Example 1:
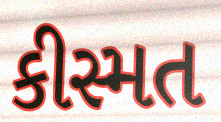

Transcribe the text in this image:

કીસ્મત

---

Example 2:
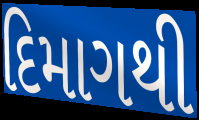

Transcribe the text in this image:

દિમાગથી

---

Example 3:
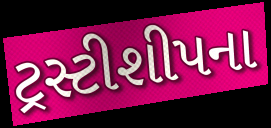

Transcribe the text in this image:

ટ્રસ્ટીશીપના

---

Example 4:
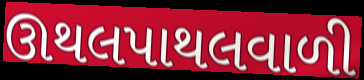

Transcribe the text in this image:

ઊથલપાથલવાળી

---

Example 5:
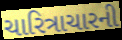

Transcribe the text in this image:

ચારિત્રાચારની